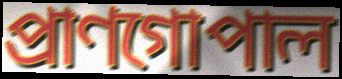
প্রাণগোপাল